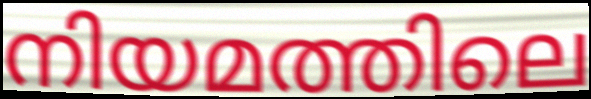
നിയമത്തിലെ